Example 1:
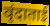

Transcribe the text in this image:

वृंदाताई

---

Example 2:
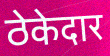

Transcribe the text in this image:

ठेकेदार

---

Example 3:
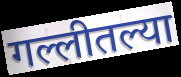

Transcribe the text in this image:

गल्लीतल्या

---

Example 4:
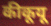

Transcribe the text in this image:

कीकूयू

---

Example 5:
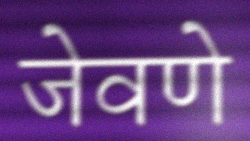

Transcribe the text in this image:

जेवणे